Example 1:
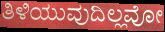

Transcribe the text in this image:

ತಿಳಿಯುವುದಿಲ್ಲವೋ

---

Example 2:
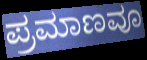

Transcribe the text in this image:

ಪ್ರಮಾಣವೂ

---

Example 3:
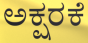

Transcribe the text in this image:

ಅಕ್ಷರಕೆ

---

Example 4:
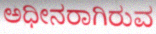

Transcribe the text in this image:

ಅಧೀನರಾಗಿರುವ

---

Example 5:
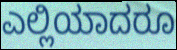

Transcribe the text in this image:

ಎಲ್ಲಿಯಾದರೂ